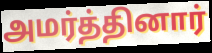
அமர்த்தினார்